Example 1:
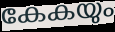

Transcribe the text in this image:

കേകയും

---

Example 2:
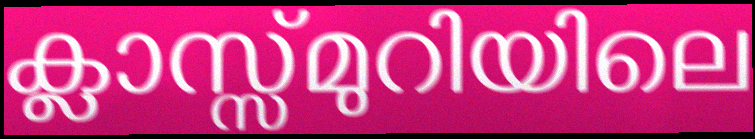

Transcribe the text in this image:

ക്ലാസ്സ്മുറിയിലെ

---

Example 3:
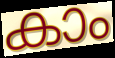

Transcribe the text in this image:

കാം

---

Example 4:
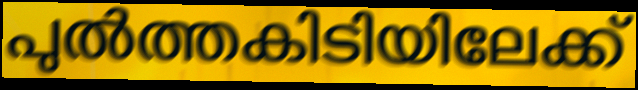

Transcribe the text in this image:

പുൽത്തകിടിയിലേക്ക്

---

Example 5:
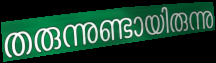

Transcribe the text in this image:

തരുന്നുണ്ടായിരുന്നു